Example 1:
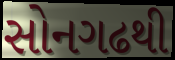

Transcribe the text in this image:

સોનગઢથી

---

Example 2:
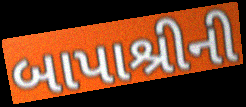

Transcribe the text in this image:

બાપાશ્રીની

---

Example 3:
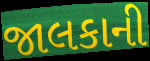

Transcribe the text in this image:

જાલકાની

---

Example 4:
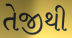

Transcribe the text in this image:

તેજીથી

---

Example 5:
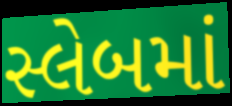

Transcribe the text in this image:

સ્લેબમાં